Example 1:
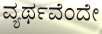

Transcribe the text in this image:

ವ್ಯರ್ಥವೆಂದೇ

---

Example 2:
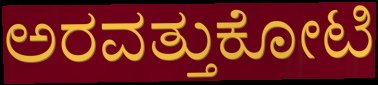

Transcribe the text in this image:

ಅರವತ್ತುಕೋಟಿ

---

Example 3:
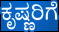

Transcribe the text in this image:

ಕೃಷ್ಣರಿಗೆ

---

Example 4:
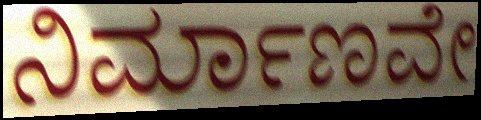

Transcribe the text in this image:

ನಿರ್ಮಾಣವೇ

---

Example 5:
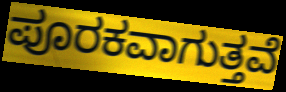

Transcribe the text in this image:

ಪೂರಕವಾಗುತ್ತವೆ